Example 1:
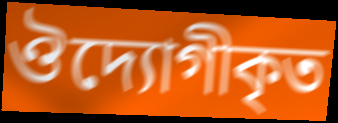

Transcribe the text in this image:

ঔদ্যোগীকৃত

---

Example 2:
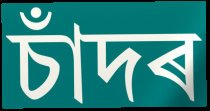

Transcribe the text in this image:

চাঁদৰ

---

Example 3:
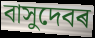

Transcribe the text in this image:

বাসুদেবৰ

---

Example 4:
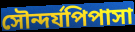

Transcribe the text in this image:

সৌন্দৰ্যপিপাসা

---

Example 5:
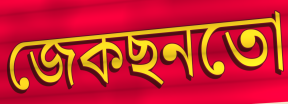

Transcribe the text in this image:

জেকছনতো